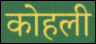
कोहली